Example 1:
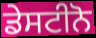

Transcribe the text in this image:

ਡੇਸਟੀਨੋ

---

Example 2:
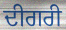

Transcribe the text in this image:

ਦੀਗਰੀ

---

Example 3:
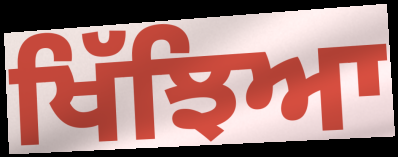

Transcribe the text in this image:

ਖਿੱਝਿਆ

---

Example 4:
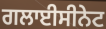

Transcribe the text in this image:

ਗਲਾਈਸੀਨੇਟ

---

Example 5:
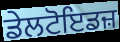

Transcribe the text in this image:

ਡੇਲਟੋਇਡਜ਼